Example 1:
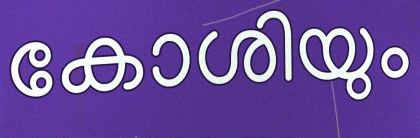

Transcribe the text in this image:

കോശിയും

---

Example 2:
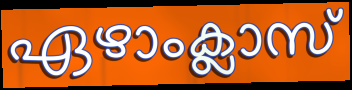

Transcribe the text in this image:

ഏഴാംക്ലാസ്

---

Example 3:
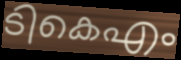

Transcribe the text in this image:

ടികെഎം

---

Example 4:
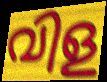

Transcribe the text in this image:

വിള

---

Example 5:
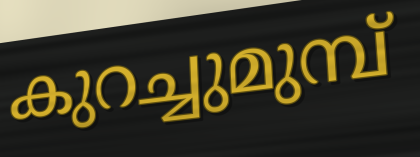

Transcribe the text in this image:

കുറച്ചുമുമ്പ്